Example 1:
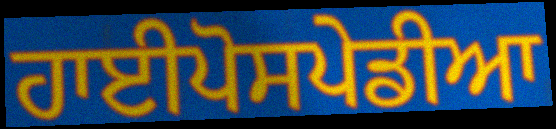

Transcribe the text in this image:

ਹਾਈਪੋਸਪੇਡੀਆ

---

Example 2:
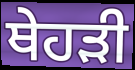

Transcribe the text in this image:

ਥੇਹੜੀ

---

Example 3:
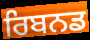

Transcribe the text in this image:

ਰਿਬਨਡ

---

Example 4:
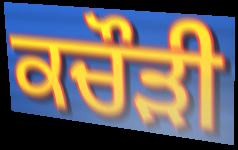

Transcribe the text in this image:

ਕਚੌੜੀ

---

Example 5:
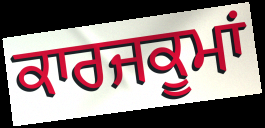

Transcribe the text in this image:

ਕਾਰਜਕੂਮਾਂ